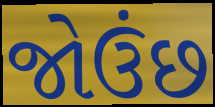
જોઉંછ